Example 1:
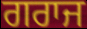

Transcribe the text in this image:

ਗਰਾਜ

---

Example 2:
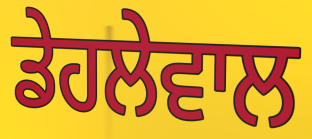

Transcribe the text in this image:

ਡੇਹਲੇਵਾਲ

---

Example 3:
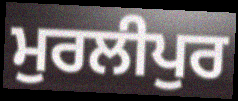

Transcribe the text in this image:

ਮੁਰਲੀਪੁਰ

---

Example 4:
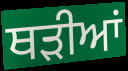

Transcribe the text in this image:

ਥੜੀਆਂ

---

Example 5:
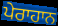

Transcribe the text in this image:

ਪੇਰਾਹਾਨ